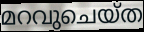
മറവുചെയ്ത